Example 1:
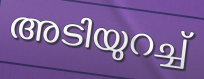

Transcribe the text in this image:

അടിയുറച്ച്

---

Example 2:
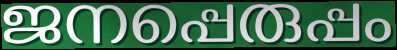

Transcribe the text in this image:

ജനപ്പെരുപ്പം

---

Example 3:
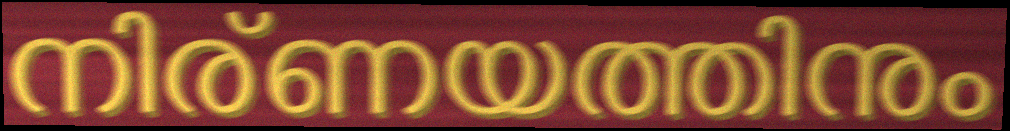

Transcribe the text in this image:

നിര്ണയത്തിനും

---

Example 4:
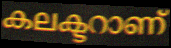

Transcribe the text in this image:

കലക്ടറാണ്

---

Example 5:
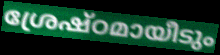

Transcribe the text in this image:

ശ്രേഷ്ഠമായീടും